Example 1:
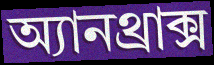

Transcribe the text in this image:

অ্যানথ্রাক্স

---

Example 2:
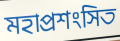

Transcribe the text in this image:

মহাপ্রশংসিত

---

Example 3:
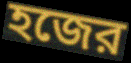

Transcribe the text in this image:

হজের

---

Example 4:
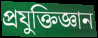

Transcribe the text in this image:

প্রযুক্তিজ্ঞান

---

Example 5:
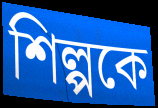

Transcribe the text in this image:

শিল্পকে